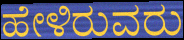
ಹೇಳಿರುವರು